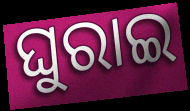
ଘୁରାଇ